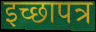
इच्छापत्र